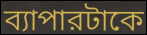
ব্যাপারটাকে